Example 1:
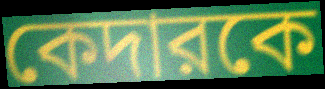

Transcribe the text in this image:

কেদারকে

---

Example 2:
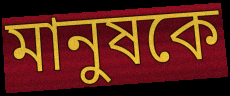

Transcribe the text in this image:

মানুষকে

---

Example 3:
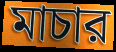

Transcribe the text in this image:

মাচার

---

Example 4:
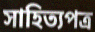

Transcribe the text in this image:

সাহিত্যপত্র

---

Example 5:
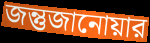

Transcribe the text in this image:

জন্তুজানোয়ার